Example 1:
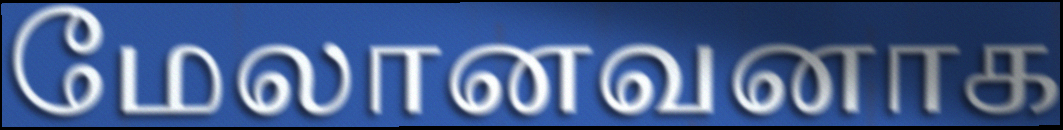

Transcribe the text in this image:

மேலானவனாக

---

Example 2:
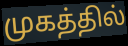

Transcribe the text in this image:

முகத்தில்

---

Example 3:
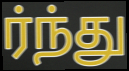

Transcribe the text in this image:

ர்ந்து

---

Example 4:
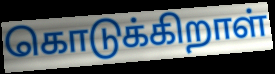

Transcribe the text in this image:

கொடுக்கிறாள்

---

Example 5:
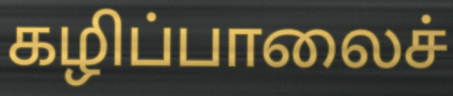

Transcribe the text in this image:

கழிப்பாலைச்